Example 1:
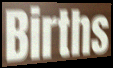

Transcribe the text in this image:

Births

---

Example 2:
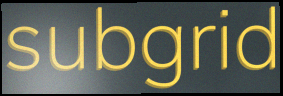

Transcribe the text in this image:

subgrid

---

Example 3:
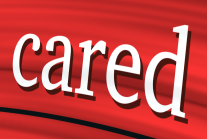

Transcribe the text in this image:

cared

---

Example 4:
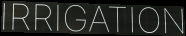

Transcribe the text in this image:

IRRIGATION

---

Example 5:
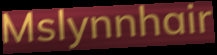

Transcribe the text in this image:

Mslynnhair